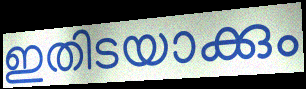
ഇതിടയാക്കും